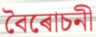
বৈৰোচনী